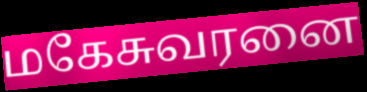
மகேசுவரனை